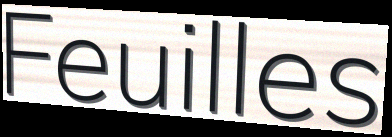
Feuilles